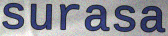
surasa